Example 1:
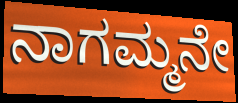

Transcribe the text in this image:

ನಾಗಮ್ಮನೇ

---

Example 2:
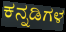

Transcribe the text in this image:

ಕನ್ನಡಿಗಳ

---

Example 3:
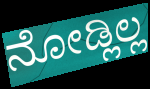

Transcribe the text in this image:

ನೋಡ್ಲಿಲ್ಲ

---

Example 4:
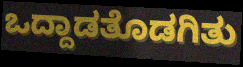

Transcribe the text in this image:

ಒದ್ದಾಡತೊಡಗಿತು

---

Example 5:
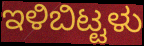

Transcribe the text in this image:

ಇಳಿಬಿಟ್ಟಳು